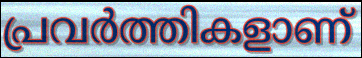
പ്രവർത്തികളാണ്